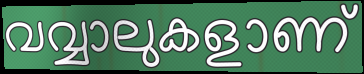
വവ്വാലുകളാണ്